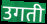
उगती